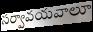
సర్వావయవాలూ